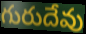
గురుదేవు